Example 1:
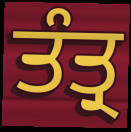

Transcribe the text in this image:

ਤੰਤ੍ਰ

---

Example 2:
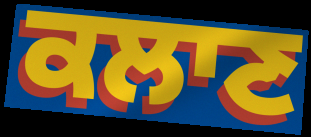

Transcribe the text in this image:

ਕਲਾਣ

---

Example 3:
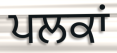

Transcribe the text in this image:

ਪਲਕਾਂ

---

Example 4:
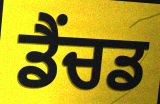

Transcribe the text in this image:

ਡੈਂਚਡ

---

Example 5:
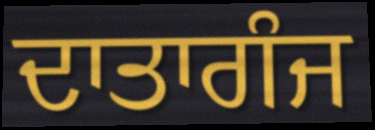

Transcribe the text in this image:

ਦਾਤਾਗੰਜ